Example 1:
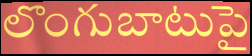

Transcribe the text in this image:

లొంగుబాటుపై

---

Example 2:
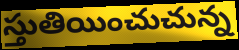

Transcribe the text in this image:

స్తుతియించుచున్న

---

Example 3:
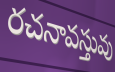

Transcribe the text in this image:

రచనావస్తువు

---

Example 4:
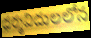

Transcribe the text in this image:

ధర్మవిదులలోన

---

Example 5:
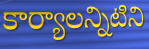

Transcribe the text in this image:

కార్యాలన్నిటిని